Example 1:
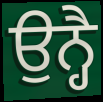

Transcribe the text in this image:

ਉਨ੍ਹੈ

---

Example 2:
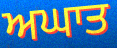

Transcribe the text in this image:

ਅਘਾਤ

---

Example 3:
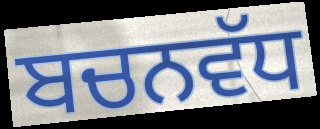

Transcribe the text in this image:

ਬਚਨਵੱਧ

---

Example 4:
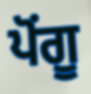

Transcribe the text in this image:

ਪੋਂਗੂ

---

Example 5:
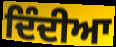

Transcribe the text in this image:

ਦਿੰਦੀਆ